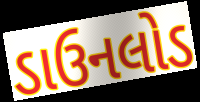
ડાઉનલોડ